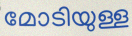
മോടിയുള്ള